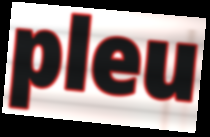
pleu